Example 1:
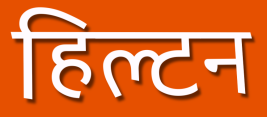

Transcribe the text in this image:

हिल्टन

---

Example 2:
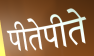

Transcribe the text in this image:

पीतेपीते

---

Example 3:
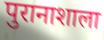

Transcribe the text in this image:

पुरानाशाला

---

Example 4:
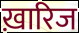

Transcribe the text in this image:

ख़ारिज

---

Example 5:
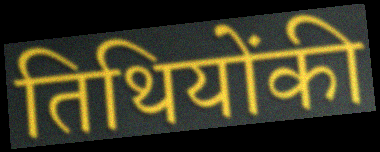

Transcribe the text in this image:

तिथियोंकी